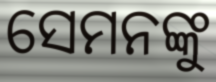
ସେମନଙ୍କୁ